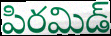
పిరమిడ్